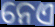
ନେଏ